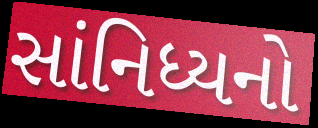
સાંનિધ્યનો